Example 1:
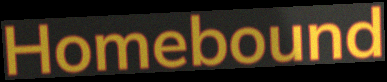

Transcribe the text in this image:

Homebound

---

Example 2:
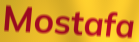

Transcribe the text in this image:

Mostafa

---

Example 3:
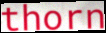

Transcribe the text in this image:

thorn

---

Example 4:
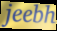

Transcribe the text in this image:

jeebh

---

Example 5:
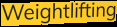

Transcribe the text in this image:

Weightlifting